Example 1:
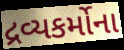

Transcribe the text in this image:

દ્રવ્યકર્મોના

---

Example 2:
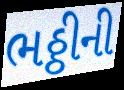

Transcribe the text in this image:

ભઠ્ઠીની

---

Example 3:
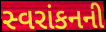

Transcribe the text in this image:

સ્વરાંકનની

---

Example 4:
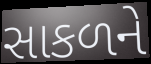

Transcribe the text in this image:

સાકળને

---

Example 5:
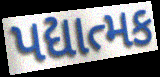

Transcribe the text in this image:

પદ્યાત્મક